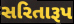
સરિતારૂપ